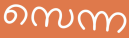
സെന്ന